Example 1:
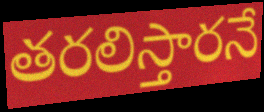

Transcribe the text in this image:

తరలిస్తారనే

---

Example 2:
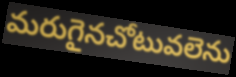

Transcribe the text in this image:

మరుగైనచోటువలెను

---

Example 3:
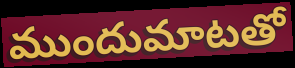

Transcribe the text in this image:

ముందుమాటతో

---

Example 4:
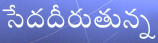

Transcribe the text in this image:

సేదదీరుతున్న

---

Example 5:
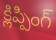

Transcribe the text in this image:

క్లిప్పింగ్